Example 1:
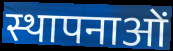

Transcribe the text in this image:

स्थापनाओं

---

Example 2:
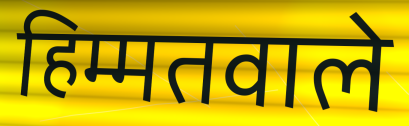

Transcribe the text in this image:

हिम्मतवाले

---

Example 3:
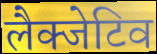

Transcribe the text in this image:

लैक्जेटिव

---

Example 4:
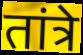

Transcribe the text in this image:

तांत्रे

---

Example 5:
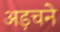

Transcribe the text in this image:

अड़चने